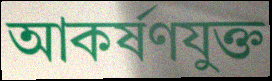
আকর্ষণযুক্ত